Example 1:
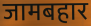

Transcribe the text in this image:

जामबहार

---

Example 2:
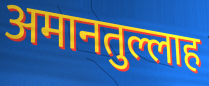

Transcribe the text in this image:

अमानतुल्लाह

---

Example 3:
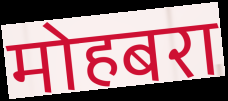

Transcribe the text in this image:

मोहबरा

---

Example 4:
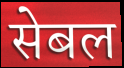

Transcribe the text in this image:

सेबल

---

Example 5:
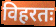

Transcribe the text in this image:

विहरतः